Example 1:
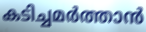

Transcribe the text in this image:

കടിച്ചമർത്താൻ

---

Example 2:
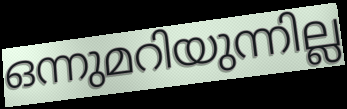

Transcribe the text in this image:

ഒന്നുമറിയുന്നില്ല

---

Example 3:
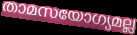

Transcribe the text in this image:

താമസയോഗ്യമല്ല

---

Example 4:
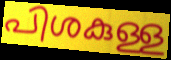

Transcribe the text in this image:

പിശകുള്ള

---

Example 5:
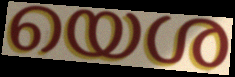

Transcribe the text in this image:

യെശ